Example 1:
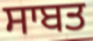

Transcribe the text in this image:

ਸਾਬਤ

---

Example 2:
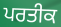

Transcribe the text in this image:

ਪਰਤੀਕ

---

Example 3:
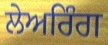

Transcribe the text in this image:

ਲੇਅਰਿੰਗ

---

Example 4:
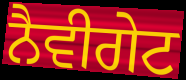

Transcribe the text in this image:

ਨੈਵੀਗੇਟ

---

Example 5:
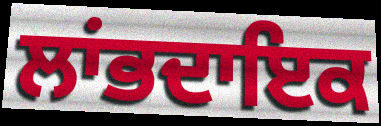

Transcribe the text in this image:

ਲਾਂਭਦਾਇਕ